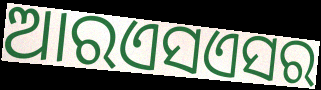
ଆରଏସଏସର